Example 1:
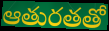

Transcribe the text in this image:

ఆతురతతో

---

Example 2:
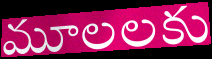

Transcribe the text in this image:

మూలలకు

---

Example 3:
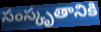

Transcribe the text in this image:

సంస్కృతానికి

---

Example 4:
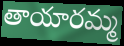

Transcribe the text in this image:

తాయారమ్మ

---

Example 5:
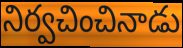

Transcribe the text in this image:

నిర్వచించినాడు